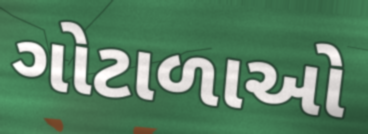
ગોટાળાઓ